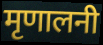
मृणालनी